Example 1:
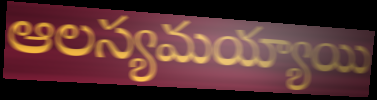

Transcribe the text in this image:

ఆలస్యమయ్యాయి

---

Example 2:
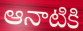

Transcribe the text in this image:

ఆనాటికి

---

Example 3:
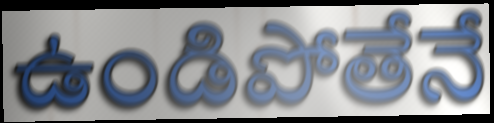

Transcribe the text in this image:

ఉండిపోతేనే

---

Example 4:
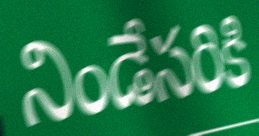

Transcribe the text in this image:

నిండేసరికి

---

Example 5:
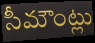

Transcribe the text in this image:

సీమౌంట్లు